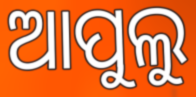
ଆପୁଲୁ